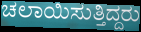
ಚಲಾಯಿಸುತ್ತಿದ್ದರು